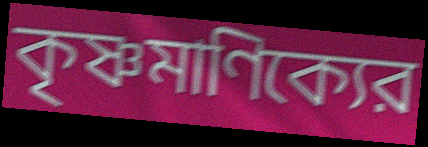
কৃষ্ণমাণিক্যের